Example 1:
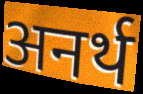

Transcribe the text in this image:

अनर्थ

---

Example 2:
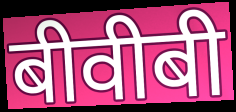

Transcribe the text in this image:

बीवीबी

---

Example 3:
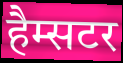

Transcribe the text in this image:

हैम्सटर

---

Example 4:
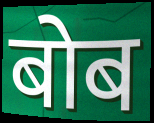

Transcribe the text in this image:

बोब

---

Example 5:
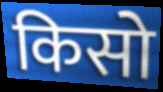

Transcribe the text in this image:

किसो